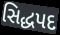
સિદ્ધપદ